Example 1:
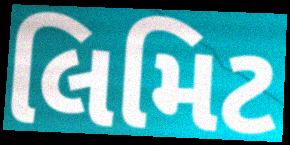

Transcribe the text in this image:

લિમિટ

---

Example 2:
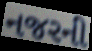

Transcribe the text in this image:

નજરની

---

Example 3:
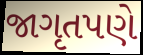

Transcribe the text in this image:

જાગૃતપણે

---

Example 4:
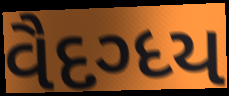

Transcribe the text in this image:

વૈદગ્ધ્ય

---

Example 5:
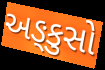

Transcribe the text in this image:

અઙ્કુસો